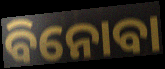
ବିନୋବା